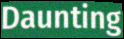
Daunting